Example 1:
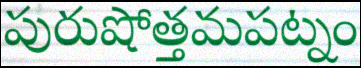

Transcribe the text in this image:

పురుషోత్తమపట్నం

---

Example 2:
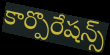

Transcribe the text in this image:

కార్పొరేషన్స్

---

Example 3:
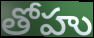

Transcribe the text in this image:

తోహు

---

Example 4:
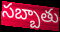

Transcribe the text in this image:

సబ్బాతు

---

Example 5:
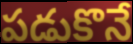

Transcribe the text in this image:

పడుకొనే